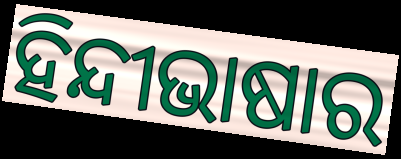
ହିନ୍ଦୀଭାଷାର